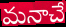
మనాచే